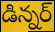
డిన్నర్